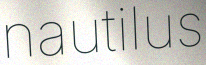
nautilus